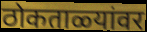
ठोकताळ्यांवर